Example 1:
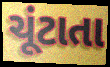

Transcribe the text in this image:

ચૂંટાતા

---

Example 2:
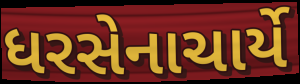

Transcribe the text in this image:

ધરસેનાચાર્યે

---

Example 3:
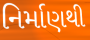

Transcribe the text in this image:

નિર્માણથી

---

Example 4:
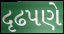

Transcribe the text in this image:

દૃઢપણે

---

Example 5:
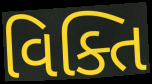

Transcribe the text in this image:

વિક્તિ